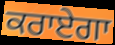
ਕਰਾਏਗਾ